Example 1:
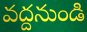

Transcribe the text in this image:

వద్దనుండి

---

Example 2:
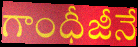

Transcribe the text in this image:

గాంధీజీనే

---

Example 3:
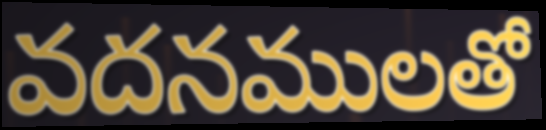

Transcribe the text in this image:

వదనములతో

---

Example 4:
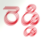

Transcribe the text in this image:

రెడ్డి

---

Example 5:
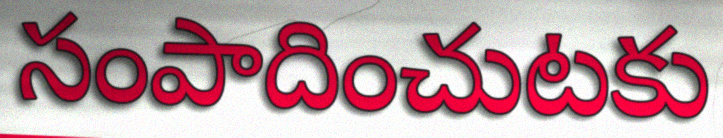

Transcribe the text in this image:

సంపాదించుటకు